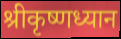
श्रीकृष्णध्यान